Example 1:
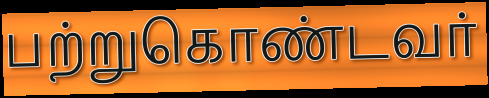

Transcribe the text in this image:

பற்றுகொண்டவர்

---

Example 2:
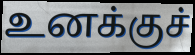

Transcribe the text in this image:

உனக்குச்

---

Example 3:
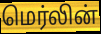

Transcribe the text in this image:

மெர்லின்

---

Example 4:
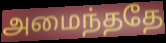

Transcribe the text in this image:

அமைந்ததே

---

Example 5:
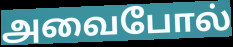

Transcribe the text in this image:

அவைபோல்